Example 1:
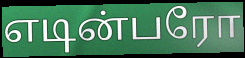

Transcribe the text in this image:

எடின்பரோ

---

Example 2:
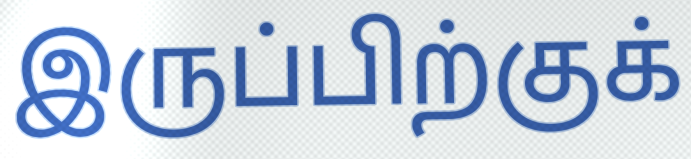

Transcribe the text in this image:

இருப்பிற்குக்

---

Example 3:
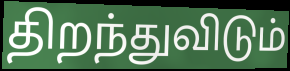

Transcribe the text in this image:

திறந்துவிடும்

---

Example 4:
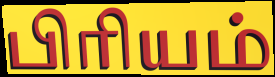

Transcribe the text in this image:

பிரியம்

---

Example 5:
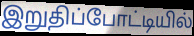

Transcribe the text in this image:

இறுதிப்போட்டியில்